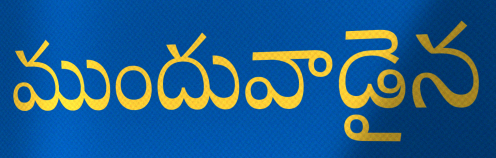
ముందువాడైన